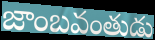
జాంబవంతుడు